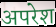
अपरेश